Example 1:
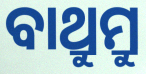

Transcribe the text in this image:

ବାଥ୍ରୁମ୍ରୁ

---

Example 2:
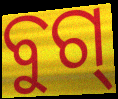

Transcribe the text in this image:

ବୁଗ୍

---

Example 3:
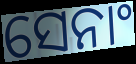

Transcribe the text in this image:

ସେନାଂ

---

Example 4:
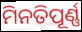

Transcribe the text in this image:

ମିନତିପୂର୍ଣ୍ଣ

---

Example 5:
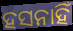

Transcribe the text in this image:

ହସନାହିଁ